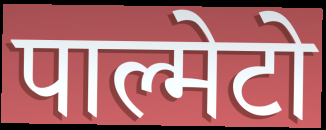
पाल्मेटो